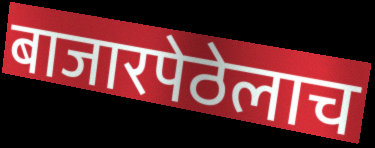
बाजारपेठेलाच